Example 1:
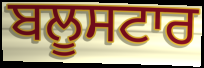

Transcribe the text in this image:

ਬਲੂਸਟਾਰ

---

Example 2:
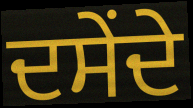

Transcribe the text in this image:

ਦਸੇਂਦੇ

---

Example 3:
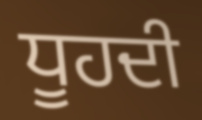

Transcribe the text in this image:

ਧੂਹਦੀ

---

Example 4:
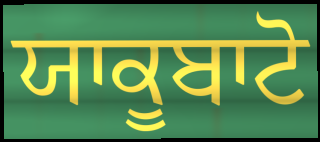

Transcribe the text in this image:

ਯਾਕੂਬਾਟੋ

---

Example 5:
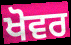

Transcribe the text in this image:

ਖੋਵਰ